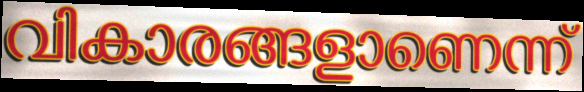
വികാരങ്ങളാണെന്ന്